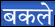
बकले